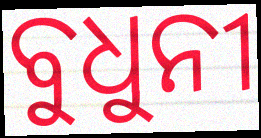
ବୁଧୁନୀ